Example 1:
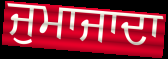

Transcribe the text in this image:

ਜੁਮਾਜਾਦਾ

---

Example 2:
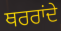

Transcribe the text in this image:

ਥਰਰਾਂਦੇ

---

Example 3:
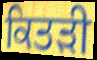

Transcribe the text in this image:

ਕਿਤੜੀ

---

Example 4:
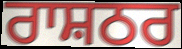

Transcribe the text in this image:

ਰਾਸ਼ਠਰ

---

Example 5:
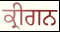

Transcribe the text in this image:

ਕ੍ਰੀਗਨ